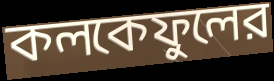
কলকেফুলের